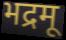
भद्रमू